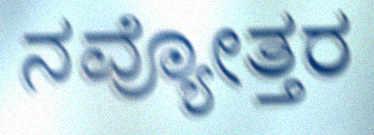
ನವ್ಯೋತ್ತರ